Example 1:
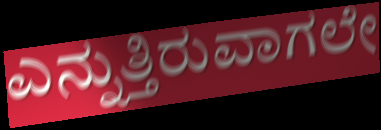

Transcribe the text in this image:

ಎನ್ನುತ್ತಿರುವಾಗಲೇ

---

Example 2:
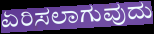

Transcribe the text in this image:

ಏರಿಸಲಾಗುವುದು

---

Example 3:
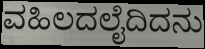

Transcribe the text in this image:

ವಹಿಲದಲೈದಿದನು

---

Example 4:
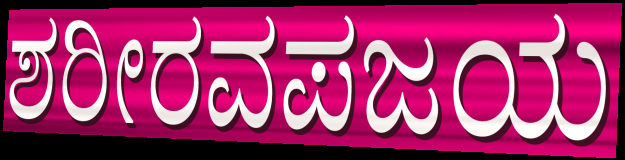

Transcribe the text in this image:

ಶರೀರವಪಜಯ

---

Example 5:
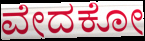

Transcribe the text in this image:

ವೇದಕೋ